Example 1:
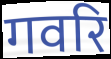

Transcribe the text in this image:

गवरि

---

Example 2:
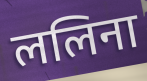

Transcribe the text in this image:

ललिना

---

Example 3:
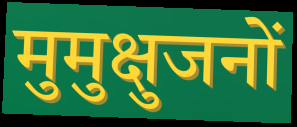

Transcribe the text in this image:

मुमुक्षुजनों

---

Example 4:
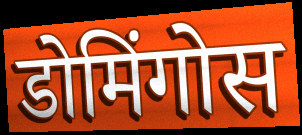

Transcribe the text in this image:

डोमिंगोस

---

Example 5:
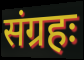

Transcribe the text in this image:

संग्रहः